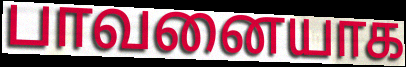
பாவனையாக